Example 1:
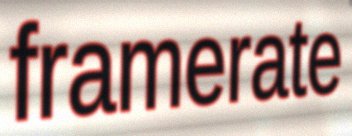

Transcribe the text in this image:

framerate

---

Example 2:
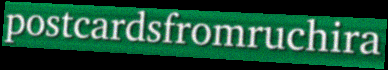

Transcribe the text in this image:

postcardsfromruchira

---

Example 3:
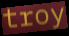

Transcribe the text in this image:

troy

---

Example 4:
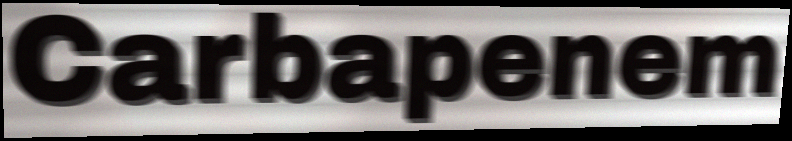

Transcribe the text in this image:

Carbapenem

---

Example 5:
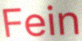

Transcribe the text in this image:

Fein